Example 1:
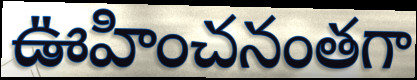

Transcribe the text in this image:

ఊహించనంతగా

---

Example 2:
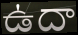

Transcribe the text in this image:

ఉదా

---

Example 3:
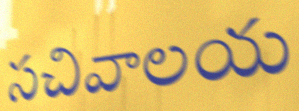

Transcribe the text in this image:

సచివాలయ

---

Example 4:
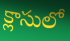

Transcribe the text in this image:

క్లాసులో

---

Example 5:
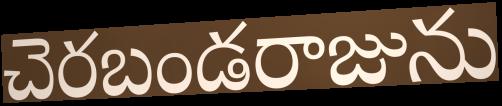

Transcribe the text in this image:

చెరబండరాజును